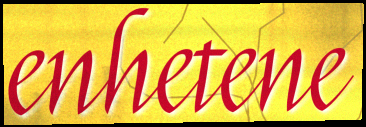
enhetene